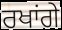
ਰਖਾਂਗੇ